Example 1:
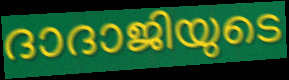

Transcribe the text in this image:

ദാദാജിയുടെ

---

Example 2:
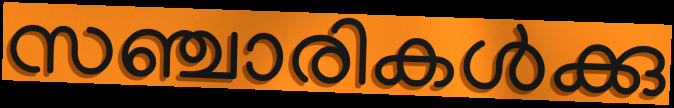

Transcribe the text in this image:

സഞ്ചാരികൾക്കു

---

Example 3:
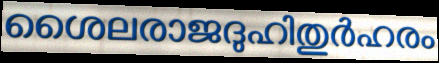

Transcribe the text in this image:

ശൈലരാജദുഹിതുർഹരം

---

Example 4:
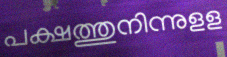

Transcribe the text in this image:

പക്ഷത്തുനിന്നുളള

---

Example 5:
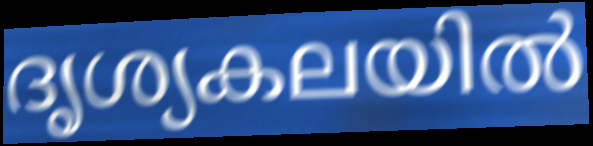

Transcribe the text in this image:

ദൃശ്യകലയിൽ